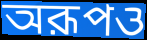
অরূপও